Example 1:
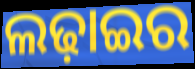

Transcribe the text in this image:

ଲଢ଼ାଇର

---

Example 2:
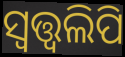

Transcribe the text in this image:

ସ୍ୱତ୍ତ୍ୱଲିପି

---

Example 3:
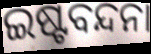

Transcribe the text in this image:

ଇଷ୍ଟବନ୍ଦନା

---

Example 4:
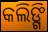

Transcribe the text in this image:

କଲିଙ୍ଗି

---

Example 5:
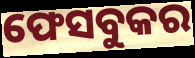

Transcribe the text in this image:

ଫେସବୁକର